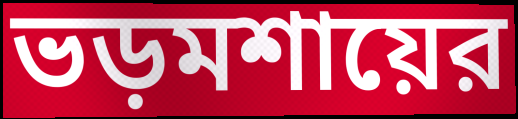
ভড়মশায়ের